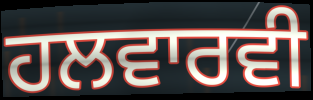
ਹਲਵਾਰਵੀ